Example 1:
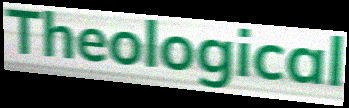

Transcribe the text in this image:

Theological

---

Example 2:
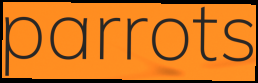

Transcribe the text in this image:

parrots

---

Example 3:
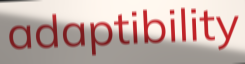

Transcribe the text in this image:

adaptibility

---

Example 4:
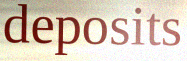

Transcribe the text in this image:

deposits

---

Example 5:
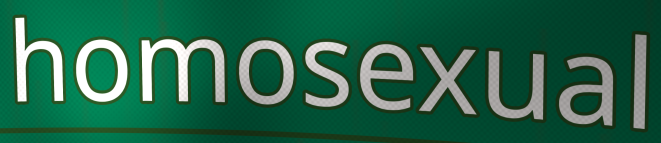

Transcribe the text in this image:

homosexual